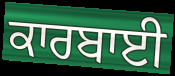
ਕਾਰਬਾਈ